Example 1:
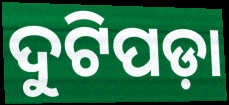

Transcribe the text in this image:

ଦୁଟିପଡ଼ା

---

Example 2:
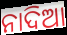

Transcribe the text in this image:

ନାଦିଆ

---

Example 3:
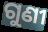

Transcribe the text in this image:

ଗୁଣୀ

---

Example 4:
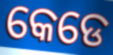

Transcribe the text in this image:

କେଡେ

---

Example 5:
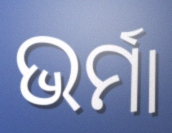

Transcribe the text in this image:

ଭର୍ମା